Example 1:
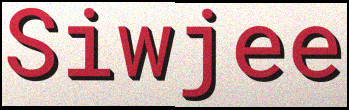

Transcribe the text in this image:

Siwjee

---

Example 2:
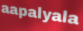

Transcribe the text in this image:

aapalyala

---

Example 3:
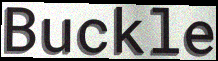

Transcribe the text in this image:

Buckle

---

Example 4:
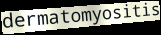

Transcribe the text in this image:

dermatomyositis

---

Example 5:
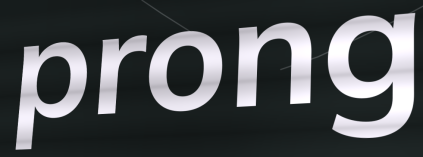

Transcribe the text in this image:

prong